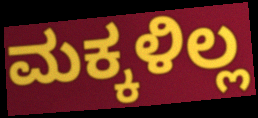
ಮಕ್ಕಳಿಲ್ಲ